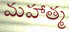
మహాత్మ